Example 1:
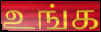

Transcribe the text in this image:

உங்க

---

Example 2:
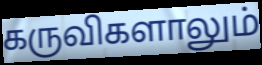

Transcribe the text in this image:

கருவிகளாலும்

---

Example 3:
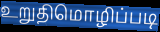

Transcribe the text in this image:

உறுதிமொழிப்படி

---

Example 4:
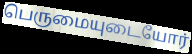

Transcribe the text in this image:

பெருமையுடையோர்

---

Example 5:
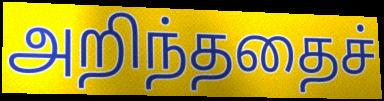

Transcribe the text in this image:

அறிந்ததைச்